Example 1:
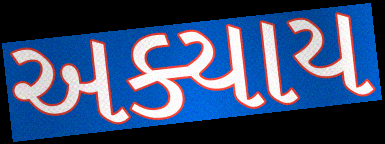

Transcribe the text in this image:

અક્યાય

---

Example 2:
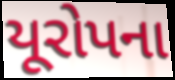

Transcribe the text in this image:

યૂરોપના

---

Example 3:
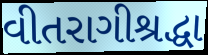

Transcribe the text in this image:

વીતરાગીશ્રદ્ધા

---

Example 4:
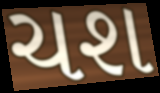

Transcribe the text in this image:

ચશ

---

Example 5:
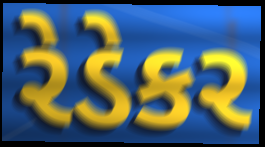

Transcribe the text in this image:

રેડેકર